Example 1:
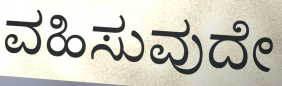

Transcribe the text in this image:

ವಹಿಸುವುದೇ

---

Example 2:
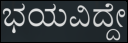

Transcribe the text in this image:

ಭಯವಿದ್ದೇ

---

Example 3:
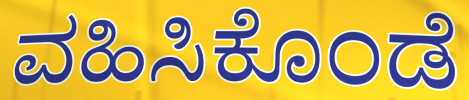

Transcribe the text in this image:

ವಹಿಸಿಕೊಂಡೆ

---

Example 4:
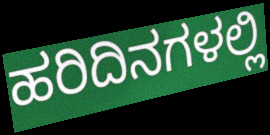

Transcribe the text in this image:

ಹರಿದಿನಗಳಲ್ಲಿ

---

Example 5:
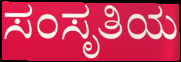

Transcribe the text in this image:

ಸಂಸೃತಿಯ